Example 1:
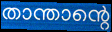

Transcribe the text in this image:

താന്താന്റെ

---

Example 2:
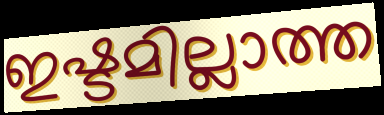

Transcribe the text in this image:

ഇഷ്ടമില്ലാത്ത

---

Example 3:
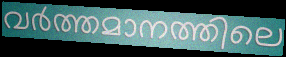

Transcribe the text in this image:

വർത്തമാനത്തിലെ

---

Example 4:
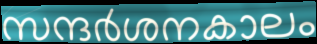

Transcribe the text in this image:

സന്ദർശനകാലം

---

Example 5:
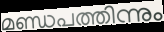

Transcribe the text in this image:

മണ്ഡപത്തിന്നും